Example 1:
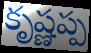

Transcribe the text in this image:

కృష్ణప్ప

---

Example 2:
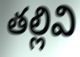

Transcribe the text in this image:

తల్లివి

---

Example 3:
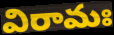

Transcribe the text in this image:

విరామః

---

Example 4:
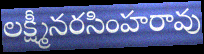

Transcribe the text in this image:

లక్ష్మీనరసింహరావు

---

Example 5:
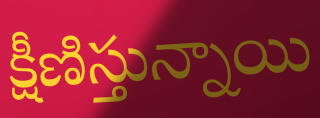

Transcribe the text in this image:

క్షీణిస్తున్నాయి